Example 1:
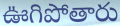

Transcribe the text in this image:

ఊగిపోతారు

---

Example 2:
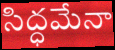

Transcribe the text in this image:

సిద్ధమేనా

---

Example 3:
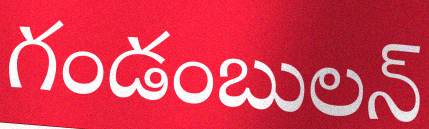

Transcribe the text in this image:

గండంబులన్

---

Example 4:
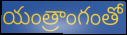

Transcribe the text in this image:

యంత్రాంగంతో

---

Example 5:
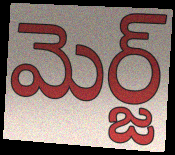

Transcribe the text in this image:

మెర్జ్